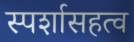
स्पर्शासहत्व